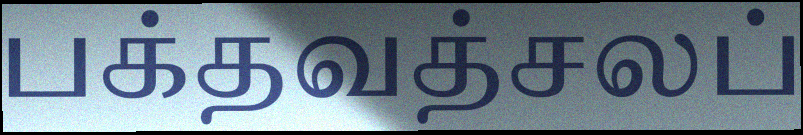
பக்தவத்சலப்